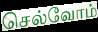
செல்வோம்